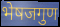
भेषजगुण